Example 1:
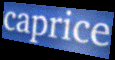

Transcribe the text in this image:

caprice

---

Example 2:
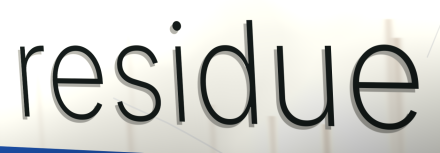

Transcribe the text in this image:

residue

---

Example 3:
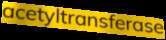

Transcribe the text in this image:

acetyltransferase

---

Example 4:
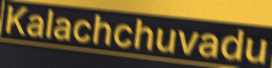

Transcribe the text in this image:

Kalachchuvadu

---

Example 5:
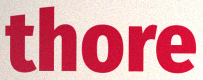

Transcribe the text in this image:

thore